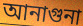
আনাগুনা